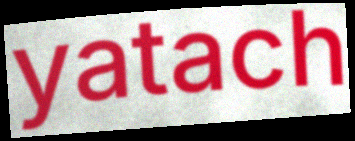
yatach